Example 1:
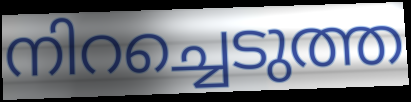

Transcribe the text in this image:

നിറച്ചെടുത്ത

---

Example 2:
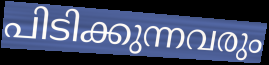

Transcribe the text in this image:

പിടിക്കുന്നവരും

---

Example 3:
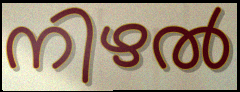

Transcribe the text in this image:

നിഴൽ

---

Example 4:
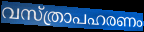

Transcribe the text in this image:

വസ്ത്രാപഹരണം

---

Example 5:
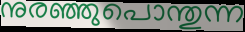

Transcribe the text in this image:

നുരഞ്ഞുപൊന്തുന്ന